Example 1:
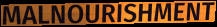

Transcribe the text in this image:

MALNOURISHMENT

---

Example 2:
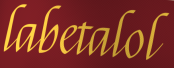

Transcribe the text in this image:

labetalol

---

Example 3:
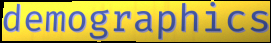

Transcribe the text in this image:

demographics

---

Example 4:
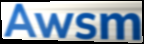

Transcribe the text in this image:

Awsm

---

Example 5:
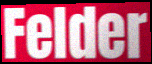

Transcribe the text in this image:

Felder